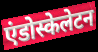
एंडोस्केलेटन